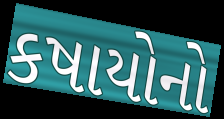
કષાયોનો